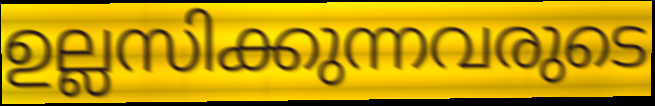
ഉല്ലസിക്കുന്നവരുടെ